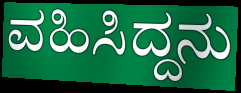
ವಹಿಸಿದ್ದನು